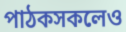
পাঠকসকলেও